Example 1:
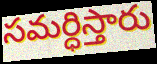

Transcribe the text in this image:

సమర్ధిస్తారు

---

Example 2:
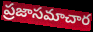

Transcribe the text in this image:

ప్రజాసమాచార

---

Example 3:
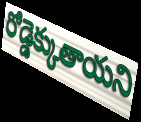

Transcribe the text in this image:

రోడ్డెక్కుతాయని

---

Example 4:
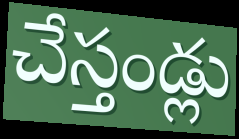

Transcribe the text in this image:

చేస్తండ్లు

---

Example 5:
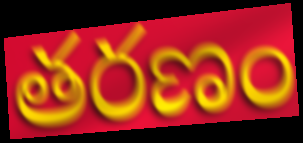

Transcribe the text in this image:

తరణం